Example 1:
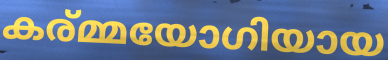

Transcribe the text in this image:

കര്മ്മയോഗിയായ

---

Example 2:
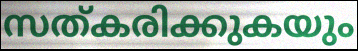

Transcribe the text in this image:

സത്കരിക്കുകയും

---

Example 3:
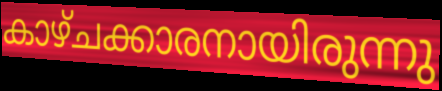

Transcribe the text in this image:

കാഴ്ചക്കാരനായിരുന്നു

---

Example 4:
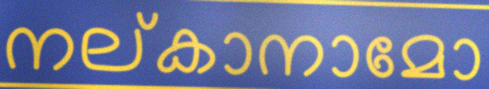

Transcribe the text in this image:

നല്കാനാമോ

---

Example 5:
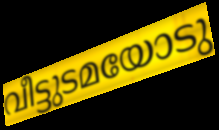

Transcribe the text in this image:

വീട്ടുടമയോടു